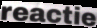
reactie